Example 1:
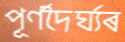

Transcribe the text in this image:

পূৰ্ণদৈৰ্ঘ্যৰ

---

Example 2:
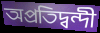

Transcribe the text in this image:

অপ্ৰতিদ্বন্দী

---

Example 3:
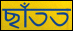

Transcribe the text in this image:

ছাঁতত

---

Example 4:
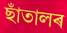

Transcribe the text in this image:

ছাঁতালৰ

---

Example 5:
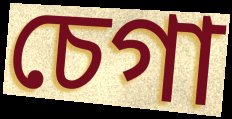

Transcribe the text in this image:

চেগা